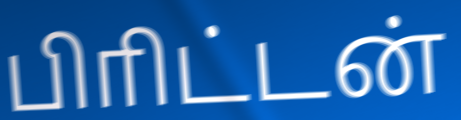
பிரிட்டன்